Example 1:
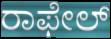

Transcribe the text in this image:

ರಾಫೇಲ್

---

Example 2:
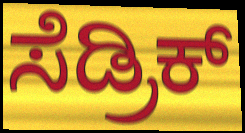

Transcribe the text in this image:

ಸೆಡ್ರಿಕ್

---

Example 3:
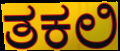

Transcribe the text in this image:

ತಕಲಿ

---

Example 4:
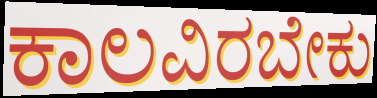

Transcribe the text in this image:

ಕಾಲವಿರಬೇಕು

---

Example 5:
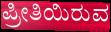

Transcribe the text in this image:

ಪ್ರೀತಿಯಿರುವ